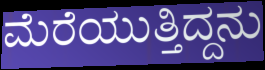
ಮೆರೆಯುತ್ತಿದ್ದನು